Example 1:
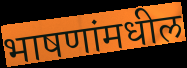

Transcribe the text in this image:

भाषणांमधील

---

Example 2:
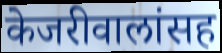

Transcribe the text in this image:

केजरीवालांसह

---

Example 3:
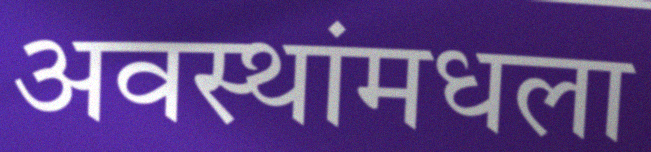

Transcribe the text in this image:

अवस्थांमधला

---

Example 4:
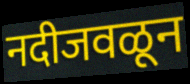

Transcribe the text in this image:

नदीजवळून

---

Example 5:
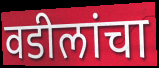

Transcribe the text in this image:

वडीलांचा